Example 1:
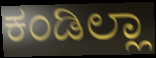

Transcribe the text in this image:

ಕಂಡಿಲ್ಲಾ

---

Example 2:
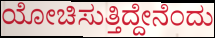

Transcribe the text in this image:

ಯೋಚಿಸುತ್ತಿದ್ದೇನೆಂದು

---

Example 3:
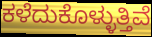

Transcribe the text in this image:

ಕಳೆದುಕೊಳ್ಳುತ್ತಿವೆ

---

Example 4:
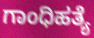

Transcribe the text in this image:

ಗಾಂಧಿಹತ್ಯೆ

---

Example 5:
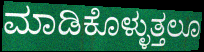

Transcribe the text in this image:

ಮಾಡಿಕೊಳ್ಳುತ್ತಲೂ